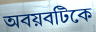
অবয়বটিকে